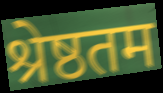
श्रेष्ठतम